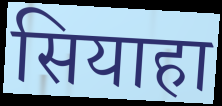
सियाहा